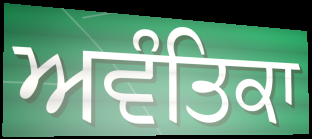
ਅਵੰਤਿਕਾ